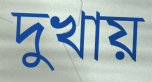
দুখায়